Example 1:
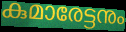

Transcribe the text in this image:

കുമാരേട്ടനും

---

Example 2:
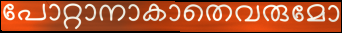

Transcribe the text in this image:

പോറ്റാനാകാതെവരുമോ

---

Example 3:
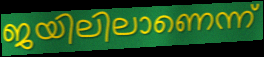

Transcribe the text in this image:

ജയിലിലാണെന്ന്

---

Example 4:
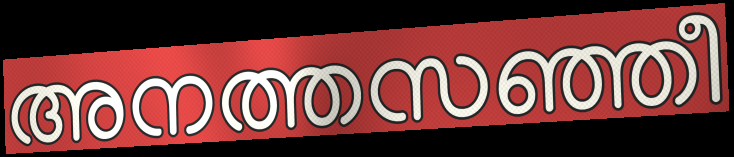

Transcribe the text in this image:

അനത്തസഞ്ഞീ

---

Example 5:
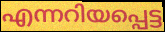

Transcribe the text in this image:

എന്നറിയപ്പെട്ട